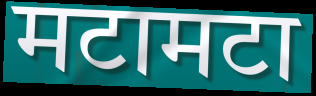
मटामटा